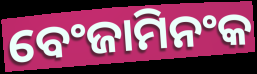
ବେଂଜାମିନଂକ